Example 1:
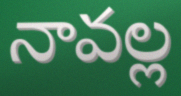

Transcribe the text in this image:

నావల్ల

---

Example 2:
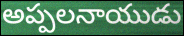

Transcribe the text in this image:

అప్పలనాయుడు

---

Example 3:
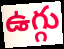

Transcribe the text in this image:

ఉగ్గు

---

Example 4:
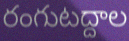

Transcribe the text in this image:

రంగుటద్దాల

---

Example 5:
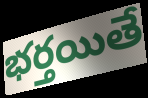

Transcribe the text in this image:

భర్తయితే